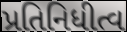
પ્રતિનિધીત્વ